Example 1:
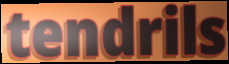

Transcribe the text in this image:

tendrils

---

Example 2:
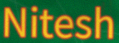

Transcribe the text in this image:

Nitesh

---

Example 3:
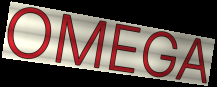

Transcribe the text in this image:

OMEGA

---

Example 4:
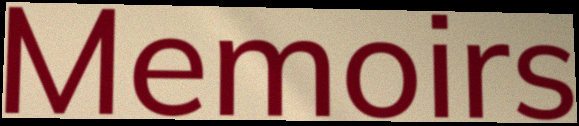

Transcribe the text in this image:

Memoirs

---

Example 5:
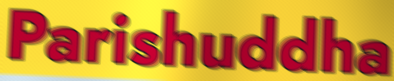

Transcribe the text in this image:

Parishuddha